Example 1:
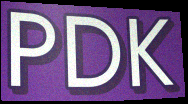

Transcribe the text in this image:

PDK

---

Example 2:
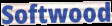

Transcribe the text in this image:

Softwood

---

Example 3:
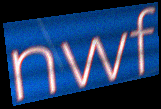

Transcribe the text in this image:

nwf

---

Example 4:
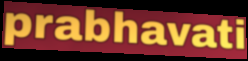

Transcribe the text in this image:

prabhavati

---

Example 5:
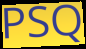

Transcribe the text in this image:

PSQ